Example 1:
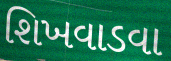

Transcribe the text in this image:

શિખવાડવા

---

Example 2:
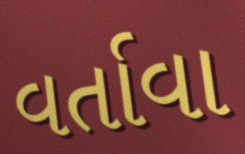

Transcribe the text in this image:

વર્તાવા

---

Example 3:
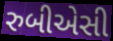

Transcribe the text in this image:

રુબીએસી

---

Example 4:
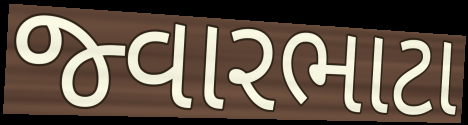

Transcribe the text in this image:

જ્વારભાટા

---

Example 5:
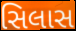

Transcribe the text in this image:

સિલાસ